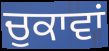
ਚੁਕਾਵਾਂ